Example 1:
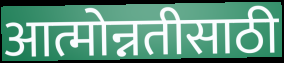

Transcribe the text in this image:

आत्मोन्नतीसाठी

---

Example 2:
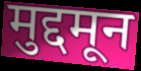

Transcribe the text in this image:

मुद्दमून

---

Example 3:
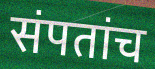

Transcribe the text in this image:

संपतांच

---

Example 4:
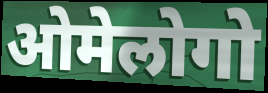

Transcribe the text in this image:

ओमेलोगो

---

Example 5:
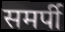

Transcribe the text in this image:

समर्पी